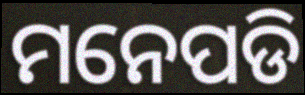
ମନେପଡି